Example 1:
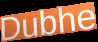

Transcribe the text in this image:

Dubhe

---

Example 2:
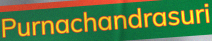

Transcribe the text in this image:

Purnachandrasuri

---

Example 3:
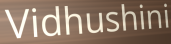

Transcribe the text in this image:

Vidhushini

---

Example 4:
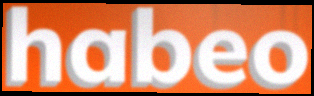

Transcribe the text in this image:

habeo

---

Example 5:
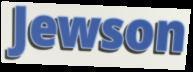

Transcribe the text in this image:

Jewson